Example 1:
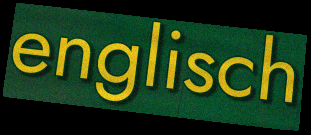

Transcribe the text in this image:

englisch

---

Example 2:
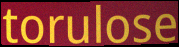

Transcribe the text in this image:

torulose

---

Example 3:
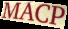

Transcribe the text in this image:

MACP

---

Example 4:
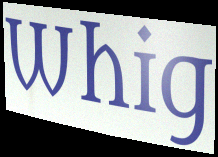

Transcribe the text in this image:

Whig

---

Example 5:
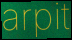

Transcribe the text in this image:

arpit